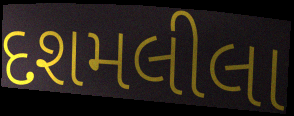
દશમલીલા